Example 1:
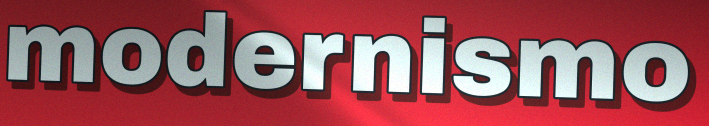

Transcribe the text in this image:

modernismo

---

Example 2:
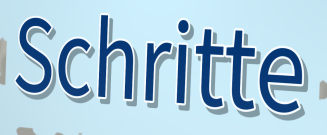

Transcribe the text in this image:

Schritte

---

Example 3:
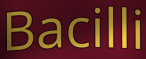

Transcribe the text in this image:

Bacilli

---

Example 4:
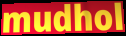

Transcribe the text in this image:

mudhol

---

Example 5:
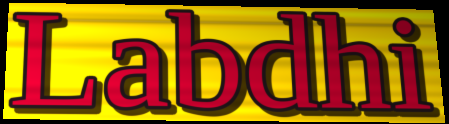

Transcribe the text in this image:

Labdhi